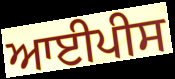
ਆਈਪੀਸ